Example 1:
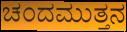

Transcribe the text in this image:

ಚಂದಮುತ್ತನ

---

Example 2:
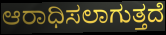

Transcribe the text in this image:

ಆರಾಧಿಸಲಾಗುತ್ತದೆ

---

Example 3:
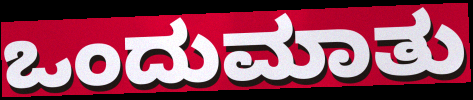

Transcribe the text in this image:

ಒಂದುಮಾತು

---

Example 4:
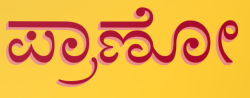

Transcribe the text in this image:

ಪ್ರಾಣೋ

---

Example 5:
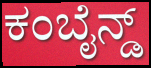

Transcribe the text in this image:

ಕಂಬೈನ್ಡ್